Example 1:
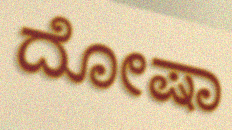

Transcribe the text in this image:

ದೋಷಾ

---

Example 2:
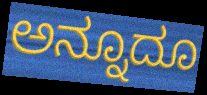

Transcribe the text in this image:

ಅನ್ನೂದೂ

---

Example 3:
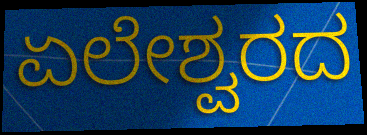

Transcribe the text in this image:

ಏಲೇಶ್ವರದ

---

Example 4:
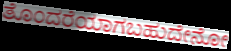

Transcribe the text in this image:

ತೊಂದರೆಯಾಗಬಹುದೇನೋ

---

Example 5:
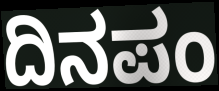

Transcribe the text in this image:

ದಿನಪಂ